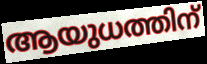
ആയുധത്തിന്